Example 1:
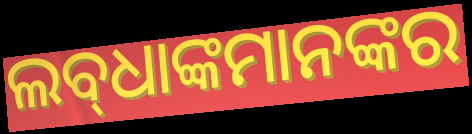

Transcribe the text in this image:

ଲବ୍‌ଧାଙ୍କମାନଙ୍କର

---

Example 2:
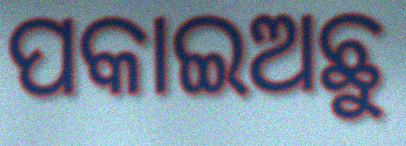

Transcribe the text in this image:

ପକାଇଅଛୁ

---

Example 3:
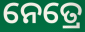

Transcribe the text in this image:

ନେତ୍ରେ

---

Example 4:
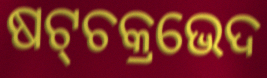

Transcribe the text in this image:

ଷଟ୍‌ଚକ୍ରଭେଦ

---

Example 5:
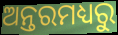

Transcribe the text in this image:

ଅନ୍ତରମଧ୍ୟରୁ